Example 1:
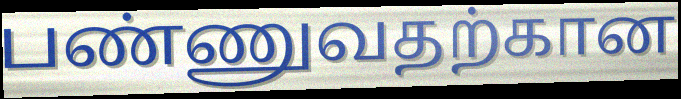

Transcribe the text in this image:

பண்ணுவதற்கான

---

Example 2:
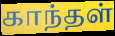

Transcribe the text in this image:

காந்தள்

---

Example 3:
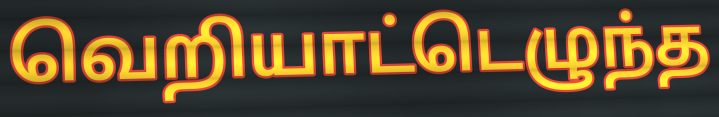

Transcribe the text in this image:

வெறியாட்டெழுந்த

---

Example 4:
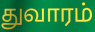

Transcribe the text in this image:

துவாரம்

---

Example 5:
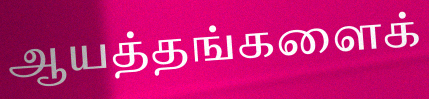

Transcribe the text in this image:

ஆயத்தங்களைக்